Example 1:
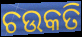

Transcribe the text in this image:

ଚଉକତି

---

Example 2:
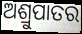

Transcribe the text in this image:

ଅଶ୍ରୁପାତର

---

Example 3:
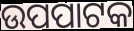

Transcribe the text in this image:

ଉପପାଟକ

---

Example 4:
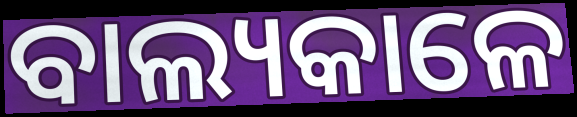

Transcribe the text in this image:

ବାଲ୍ୟକାଳେ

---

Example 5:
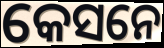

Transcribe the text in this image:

କେସନେ